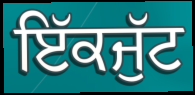
ਇੱਕਜੁੱਟ